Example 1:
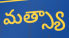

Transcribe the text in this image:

మత్స్యా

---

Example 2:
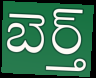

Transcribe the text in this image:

బెర్త్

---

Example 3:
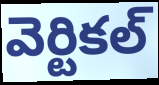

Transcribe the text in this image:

వెర్టికల్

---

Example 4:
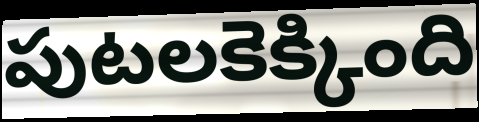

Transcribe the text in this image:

పుటలకెక్కింది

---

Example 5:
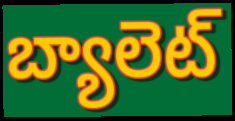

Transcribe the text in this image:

బ్యాలెట్